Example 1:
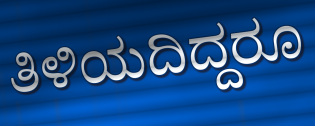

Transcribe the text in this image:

ತಿಳಿಯದಿದ್ದರೂ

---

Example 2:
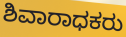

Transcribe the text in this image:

ಶಿವಾರಾಧಕರು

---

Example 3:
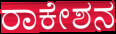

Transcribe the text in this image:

ರಾಕೇಶನ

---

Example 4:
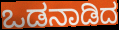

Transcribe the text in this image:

ಒಡನಾಡಿದ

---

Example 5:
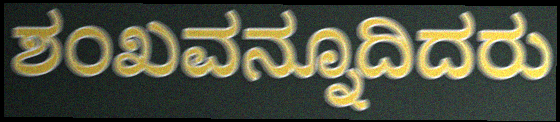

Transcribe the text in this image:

ಶಂಖವನ್ನೂದಿದರು